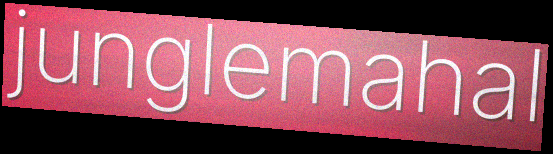
junglemahal